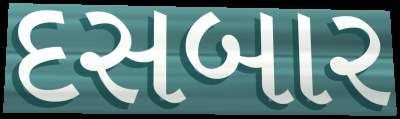
દસબાર